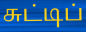
சுட்டிப்